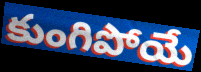
కుంగిపోయే